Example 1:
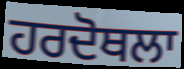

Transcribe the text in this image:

ਹਰਦੋਥਲਾ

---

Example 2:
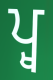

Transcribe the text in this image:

ਪ੍ਥ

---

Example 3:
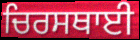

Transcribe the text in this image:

ਚਿਰਸਥਾਈ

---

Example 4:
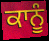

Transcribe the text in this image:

ਕਾਨੂੰ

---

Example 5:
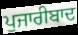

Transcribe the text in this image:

ਪੁਜਾਰੀਬਾਦ